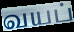
வயப்